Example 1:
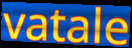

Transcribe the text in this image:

vatale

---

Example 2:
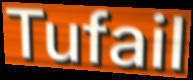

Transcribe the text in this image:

Tufail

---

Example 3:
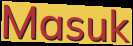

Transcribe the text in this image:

Masuk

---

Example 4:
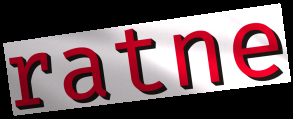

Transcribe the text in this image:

ratne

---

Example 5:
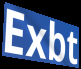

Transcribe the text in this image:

Exbt